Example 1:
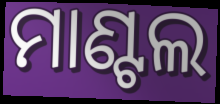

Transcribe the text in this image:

ମାଣ୍ଟଲ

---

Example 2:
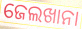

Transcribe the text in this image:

ଜେଲଖାନା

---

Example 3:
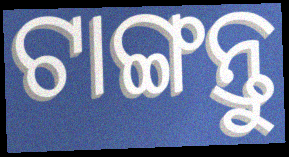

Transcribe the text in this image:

ଟାଙ୍ଗନ୍ତୁ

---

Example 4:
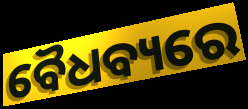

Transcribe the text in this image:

ବୈଧବ୍ୟରେ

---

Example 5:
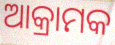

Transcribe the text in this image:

ଆକ୍ରାମକ